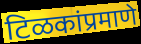
टिळकांप्रमाणे